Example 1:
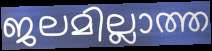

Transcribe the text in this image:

ജലമില്ലാത്ത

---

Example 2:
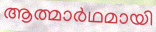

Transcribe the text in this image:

ആത്മാർഥമായി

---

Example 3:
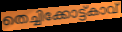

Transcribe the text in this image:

തെച്ചിക്കോട്ട്കാവ്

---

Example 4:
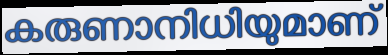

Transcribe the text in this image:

കരുണാനിധിയുമാണ്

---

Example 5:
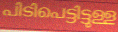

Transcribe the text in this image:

പിടിപെട്ടിട്ടുള്ള